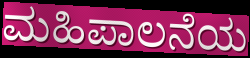
ಮಹಿಪಾಲನೆಯ